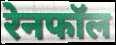
रेनफॉल